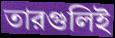
তারগুলিই